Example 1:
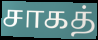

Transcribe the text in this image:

சாகத்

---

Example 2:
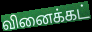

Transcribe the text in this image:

வினைக்கட்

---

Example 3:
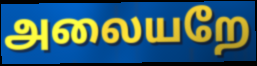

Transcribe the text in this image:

அலையறே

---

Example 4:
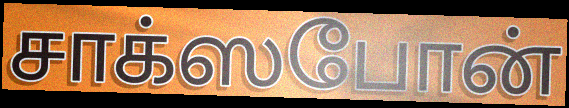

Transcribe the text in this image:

சாக்ஸபோன்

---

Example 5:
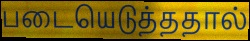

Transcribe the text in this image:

படையெடுத்ததால்